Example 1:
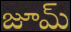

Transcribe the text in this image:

జూమ్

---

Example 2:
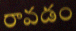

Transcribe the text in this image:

రావడం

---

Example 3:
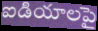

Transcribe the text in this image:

ఐడియాలపై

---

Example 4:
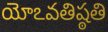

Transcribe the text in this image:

యోఽవతిష్ఠతి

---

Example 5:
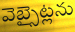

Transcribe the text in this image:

వెబ్సైట్లను